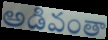
అడివంతా